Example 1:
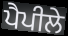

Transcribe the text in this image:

ਪੈਪੀਲੇ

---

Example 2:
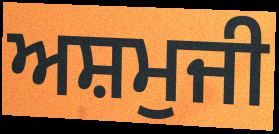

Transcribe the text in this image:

ਅਸ਼ਮੁਜੀ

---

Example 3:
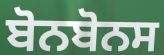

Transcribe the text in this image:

ਬੋਨਬੋਨਸ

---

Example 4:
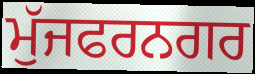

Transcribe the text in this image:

ਮੁੱਜਫਰਨਗਰ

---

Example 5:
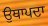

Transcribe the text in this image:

ਉਥਾਪਦਾ